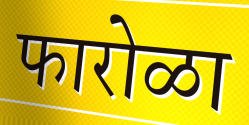
फारोळा